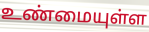
உண்மையுள்ள